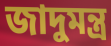
জাদুমন্ত্র